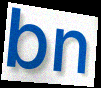
bn